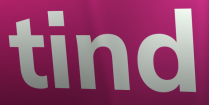
tind